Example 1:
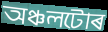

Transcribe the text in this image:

অঞ্চলটোৰ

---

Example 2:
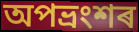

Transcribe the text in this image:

অপভ্ৰংশৰ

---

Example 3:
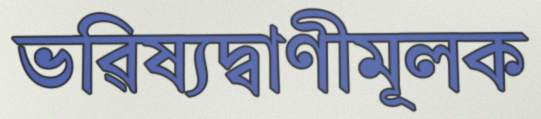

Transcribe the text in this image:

ভৱিষ্যদ্বাণীমূলক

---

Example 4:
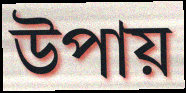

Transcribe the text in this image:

উপায়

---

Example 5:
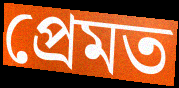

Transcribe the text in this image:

প্ৰেমত